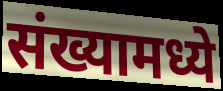
संख्यामध्ये